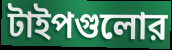
টাইপগুলোর